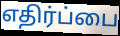
எதிர்ப்பை